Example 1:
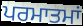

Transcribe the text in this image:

ਪਰਮਾਤਮਾਂ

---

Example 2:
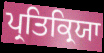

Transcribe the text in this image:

ਪ੍ਰਤਿਕ੍ਰਿਯਾ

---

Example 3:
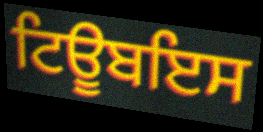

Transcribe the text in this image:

ਟਿਊਬਇਸ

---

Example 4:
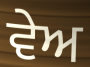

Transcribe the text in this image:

ਵੇਅ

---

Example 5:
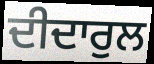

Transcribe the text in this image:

ਦੀਦਾਰੁਲ